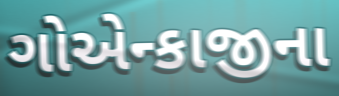
ગોએન્કાજીના